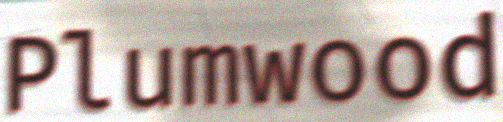
Plumwood